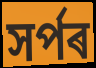
সৰ্পৰ